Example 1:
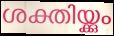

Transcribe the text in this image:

ശക്തിയ്ക്കും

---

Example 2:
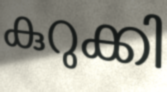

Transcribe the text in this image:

കുറുക്കി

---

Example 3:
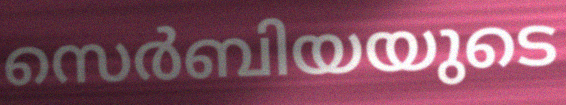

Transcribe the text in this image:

സെർബിയയുടെ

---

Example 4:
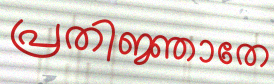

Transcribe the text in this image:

പ്രതിജ്ഞാതേ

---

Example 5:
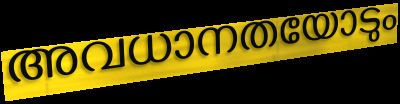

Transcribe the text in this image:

അവധാനതയോടും